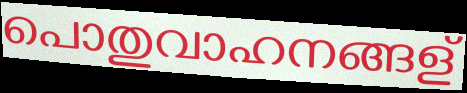
പൊതുവാഹനങ്ങള്